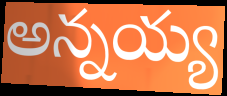
అన్నయ్య